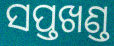
ସପ୍ତଖଣ୍ଡ